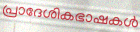
പ്രാദേശികഭാഷകൾ